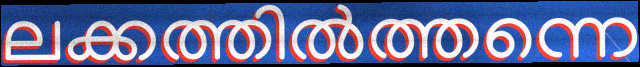
ലക്കത്തിൽത്തന്നെ